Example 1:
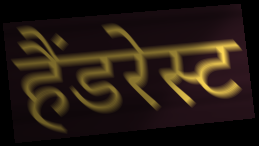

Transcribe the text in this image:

हैंडरेस्ट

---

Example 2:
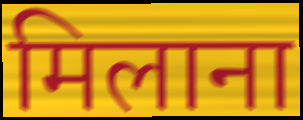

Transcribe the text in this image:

मिलाना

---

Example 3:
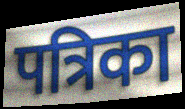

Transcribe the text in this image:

पत्रिका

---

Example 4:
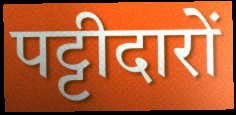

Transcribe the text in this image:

पट्टीदारों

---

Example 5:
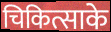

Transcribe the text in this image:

चिकित्साके